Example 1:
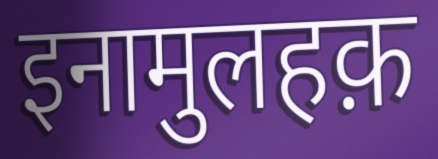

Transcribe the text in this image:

इनामुलहक़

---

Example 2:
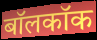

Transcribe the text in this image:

बॉलकॉक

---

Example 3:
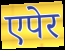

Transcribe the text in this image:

एपेर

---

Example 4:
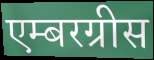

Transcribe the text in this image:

एम्बरग्रीस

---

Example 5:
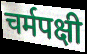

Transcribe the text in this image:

चर्मपक्षी